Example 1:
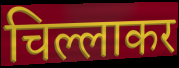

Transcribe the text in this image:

चिल्‍लाकर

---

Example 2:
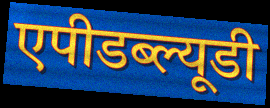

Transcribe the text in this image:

एपीडब्ल्यूडी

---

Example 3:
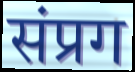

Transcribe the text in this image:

संप्रग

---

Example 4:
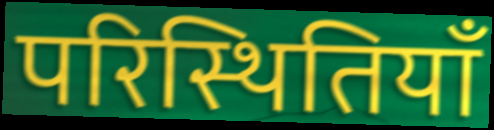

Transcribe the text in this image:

परिस्थितियाँ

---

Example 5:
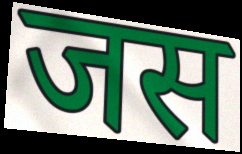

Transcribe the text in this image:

जस